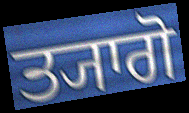
ਤ੍ਯਾਗੋ